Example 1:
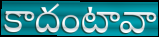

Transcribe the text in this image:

కాదంటావా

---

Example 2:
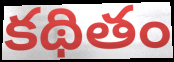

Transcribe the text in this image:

కథితం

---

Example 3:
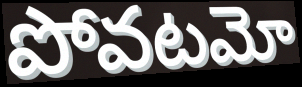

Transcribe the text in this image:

పోవటమో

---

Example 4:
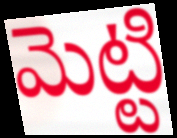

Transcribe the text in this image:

మెట్టి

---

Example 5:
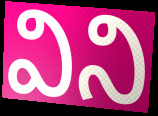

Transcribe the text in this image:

విని